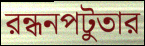
রন্ধনপটুতার